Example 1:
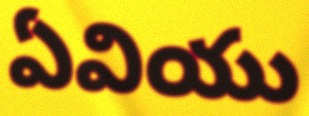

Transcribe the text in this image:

ఏవియు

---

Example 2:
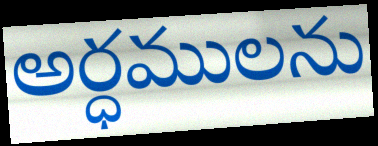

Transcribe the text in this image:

అర్ధములను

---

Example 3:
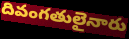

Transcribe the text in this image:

దివంగతులైనారు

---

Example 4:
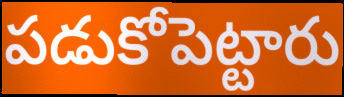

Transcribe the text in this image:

పడుకోపెట్టారు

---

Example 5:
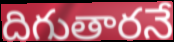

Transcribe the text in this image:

దిగుతారనే